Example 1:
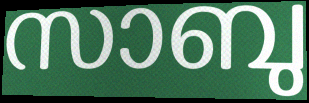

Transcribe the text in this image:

സാബു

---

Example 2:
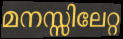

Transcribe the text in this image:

മനസ്സിലേറ്റ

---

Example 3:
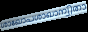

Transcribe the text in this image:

ശാഖോപശാഖാന്വിതാ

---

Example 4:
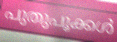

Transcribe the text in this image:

പുതുപൂക്കൾ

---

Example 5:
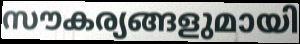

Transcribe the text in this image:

സൗകര്യങ്ങളുമായി